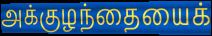
அக்குழந்தையைக்